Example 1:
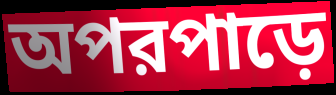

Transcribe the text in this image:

অপরপাড়ে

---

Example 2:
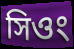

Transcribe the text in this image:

সিওং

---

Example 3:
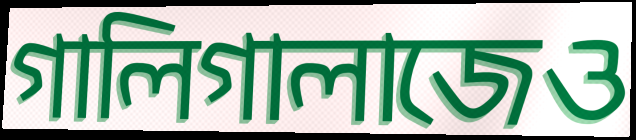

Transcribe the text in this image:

গালিগালাজেও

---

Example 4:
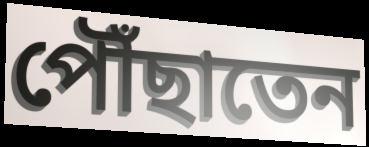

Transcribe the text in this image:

পৌঁছাতেন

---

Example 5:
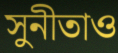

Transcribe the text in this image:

সুনীতাও